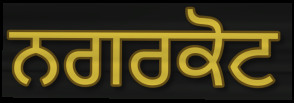
ਨਗਰਕੋਟ